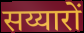
सय्यारों